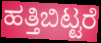
ಹತ್ತಿಬಿಟ್ಟರೆ